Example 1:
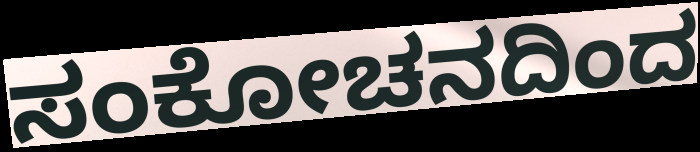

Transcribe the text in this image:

ಸಂಕೋಚನದಿಂದ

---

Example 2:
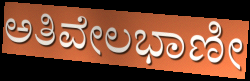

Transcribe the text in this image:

ಅತಿವೇಲಭಾಣೀ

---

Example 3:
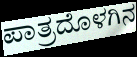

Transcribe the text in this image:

ಪಾತ್ರದೊಳಗಿನ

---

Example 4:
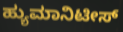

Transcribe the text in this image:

ಹ್ಯುಮಾನಿಟೀಸ್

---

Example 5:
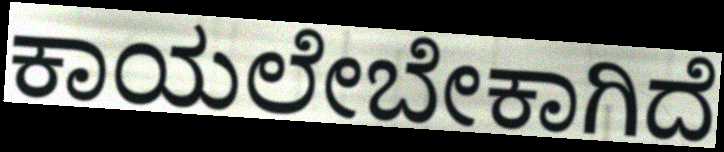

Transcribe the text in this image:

ಕಾಯಲೇಬೇಕಾಗಿದೆ